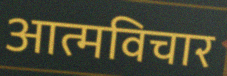
आत्मविचार